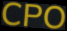
CPO